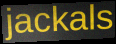
jackals